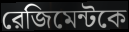
রেজিমেন্টকে